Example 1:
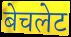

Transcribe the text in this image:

बेचलेट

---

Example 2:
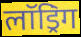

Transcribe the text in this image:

लॉड्रिंग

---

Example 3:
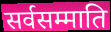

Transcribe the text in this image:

सर्वसम्माति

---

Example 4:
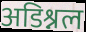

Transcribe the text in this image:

अडिश्नल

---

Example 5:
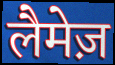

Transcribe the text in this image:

लैमेज़